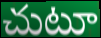
చుటూ